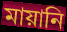
মায়ানি